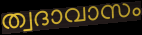
ത്വദാവാസം